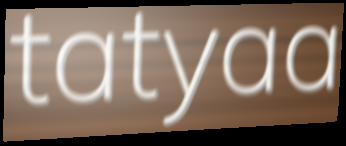
tatyaa